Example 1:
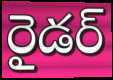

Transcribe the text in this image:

రైడర్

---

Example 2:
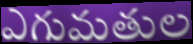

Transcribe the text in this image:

ఎగుమతుల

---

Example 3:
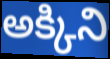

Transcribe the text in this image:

అక్కిని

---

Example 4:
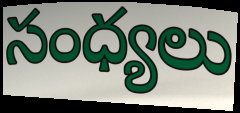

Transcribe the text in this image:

సంధ్యలు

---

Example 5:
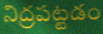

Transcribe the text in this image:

నిద్రపట్టడం